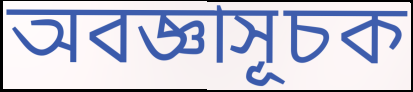
অবজ্ঞাসূচক